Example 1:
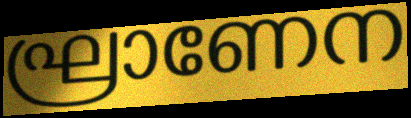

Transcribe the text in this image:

ഘ്രാണേന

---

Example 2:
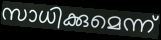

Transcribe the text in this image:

സാധിക്കുമെന്ന്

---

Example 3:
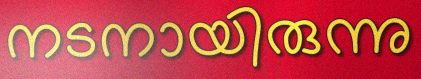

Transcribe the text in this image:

നടനായിരുന്നു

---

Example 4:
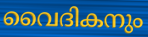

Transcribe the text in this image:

വൈദികനും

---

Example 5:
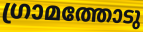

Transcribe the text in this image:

ഗ്രാമത്തോടു